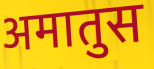
अमातुस